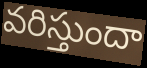
వరిస్తుందా